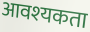
आवश्‍यकता